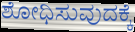
ಶೋಧಿಸುವುದಕ್ಕೆ